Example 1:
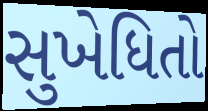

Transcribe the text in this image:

સુખેધિતો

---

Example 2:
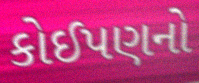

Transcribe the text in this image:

કોઈપણનો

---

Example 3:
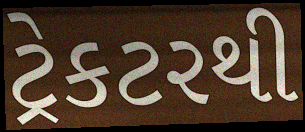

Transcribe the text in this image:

ટ્રેકટરથી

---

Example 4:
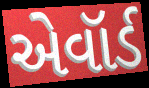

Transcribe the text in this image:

એવૉર્ડ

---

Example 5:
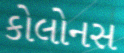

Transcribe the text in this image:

કોલોનસ